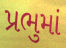
પ્રભુમાં